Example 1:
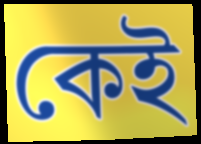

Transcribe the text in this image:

কেই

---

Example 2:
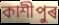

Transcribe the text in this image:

কাশীপুৰ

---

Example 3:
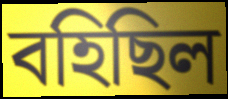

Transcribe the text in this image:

বহিছিল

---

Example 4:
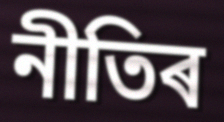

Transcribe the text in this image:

নীতিৰ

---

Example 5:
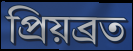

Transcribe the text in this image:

প্ৰিয়ব্ৰত